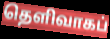
தெளிவாகப்